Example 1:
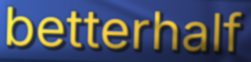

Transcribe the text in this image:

betterhalf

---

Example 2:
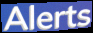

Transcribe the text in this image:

Alerts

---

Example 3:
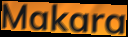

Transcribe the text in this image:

Makara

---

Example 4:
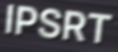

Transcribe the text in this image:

IPSRT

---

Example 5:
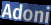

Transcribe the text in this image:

Adoni